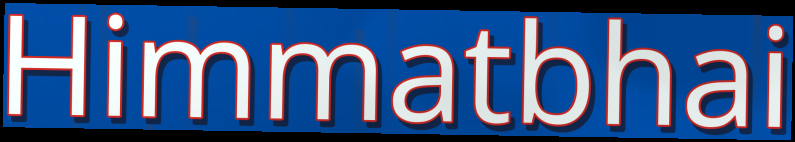
Himmatbhai